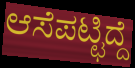
ಆಸೆಪಟ್ಟಿದ್ದೆ